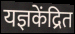
यज्ञकेंद्रित